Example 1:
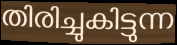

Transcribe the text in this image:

തിരിച്ചുകിട്ടുന്ന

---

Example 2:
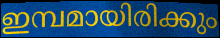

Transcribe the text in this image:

ഇമ്പമായിരിക്കും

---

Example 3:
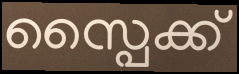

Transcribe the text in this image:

സ്പൈക്ക്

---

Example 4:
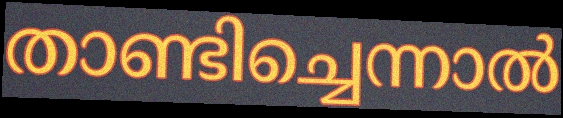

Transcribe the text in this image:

താണ്ടിച്ചെന്നാൽ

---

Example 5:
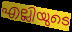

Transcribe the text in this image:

എല്ലിയുടെ